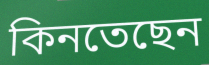
কিনতেছেন